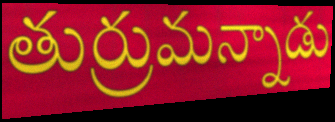
తుర్రుమన్నాడు